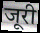
जूरी